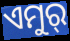
ଏମୁର୍